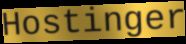
Hostinger